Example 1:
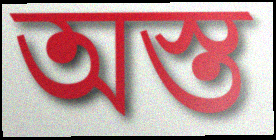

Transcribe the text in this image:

অস্ত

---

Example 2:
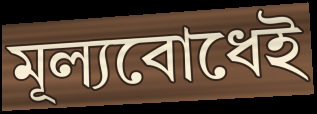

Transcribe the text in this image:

মূল্যবোধেই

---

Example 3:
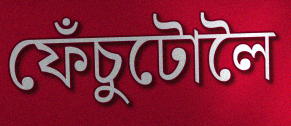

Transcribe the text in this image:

ফেঁচুটোলৈ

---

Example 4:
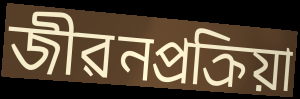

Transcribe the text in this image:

জীৱনপ্ৰক্ৰিয়া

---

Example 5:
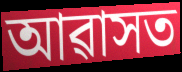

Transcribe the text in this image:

আৱাসত